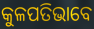
କୁଳପତିଭାବେ